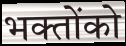
भक्तोंको